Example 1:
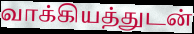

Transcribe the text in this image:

வாக்கியத்துடன்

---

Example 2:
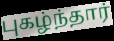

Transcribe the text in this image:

புகழ்ந்தார்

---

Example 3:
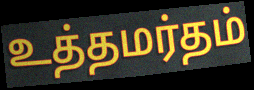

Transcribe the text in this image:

உத்தமர்தம்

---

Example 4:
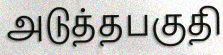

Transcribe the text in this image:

அடுத்தபகுதி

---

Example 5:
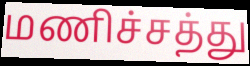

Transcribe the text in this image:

மணிச்சத்து